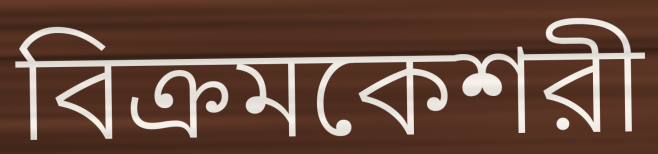
বিক্রমকেশরী